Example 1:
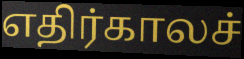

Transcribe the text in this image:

எதிர்காலச்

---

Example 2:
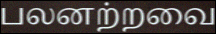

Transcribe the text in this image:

பலனற்றவை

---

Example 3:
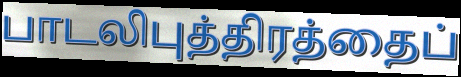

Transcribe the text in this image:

பாடலிபுத்திரத்தைப்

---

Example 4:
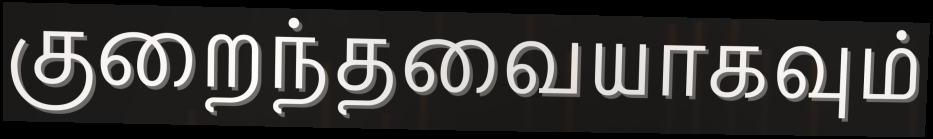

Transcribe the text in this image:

குறைந்தவையாகவும்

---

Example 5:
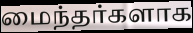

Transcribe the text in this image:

மைந்தர்களாக